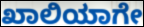
ಖಾಲಿಯಾಗೇ